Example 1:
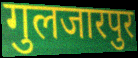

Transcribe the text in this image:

गुलजारपुर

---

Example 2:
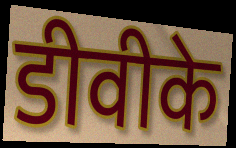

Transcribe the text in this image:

डीवीके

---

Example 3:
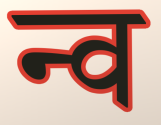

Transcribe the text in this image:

न्व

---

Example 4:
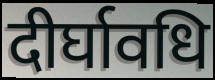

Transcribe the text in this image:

दीर्घावधि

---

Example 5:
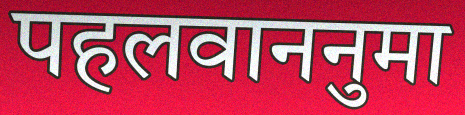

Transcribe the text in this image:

पहलवाननुमा